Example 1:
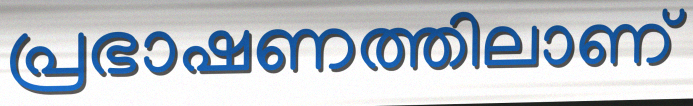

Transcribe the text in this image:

പ്രഭാഷണത്തിലാണ്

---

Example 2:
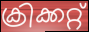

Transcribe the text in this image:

ക്രിക്കറ്റ്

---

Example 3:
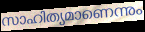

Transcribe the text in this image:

സാഹിത്യമാണെന്നും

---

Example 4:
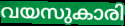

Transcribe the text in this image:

വയസുകാരി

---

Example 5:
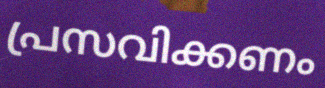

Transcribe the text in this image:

പ്രസവിക്കണം